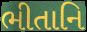
ભીતાનિ